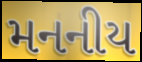
મનનીય